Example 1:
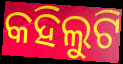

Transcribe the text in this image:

କହିଲୁଟି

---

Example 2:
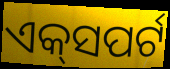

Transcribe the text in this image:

ଏକ୍‌ସପର୍ଟ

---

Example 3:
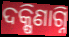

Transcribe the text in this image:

ଦକ୍ଷିଣାଗ୍ନି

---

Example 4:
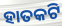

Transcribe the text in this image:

ହାତକଟି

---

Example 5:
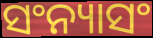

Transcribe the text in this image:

ସଂନ୍ୟାସଂ